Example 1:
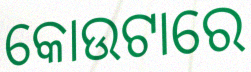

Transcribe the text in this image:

କୋଉଟାରେ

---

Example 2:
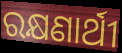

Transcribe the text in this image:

ରକ୍ଷଣାର୍ଥୀ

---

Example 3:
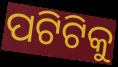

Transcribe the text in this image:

ପଟିଟିକୁ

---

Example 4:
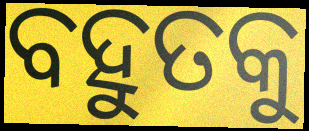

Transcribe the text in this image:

ବହୁତକୁ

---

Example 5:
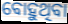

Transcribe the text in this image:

ବୋହୁଥିବା